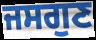
ਜਸਗੁਣ